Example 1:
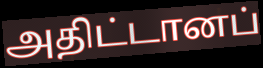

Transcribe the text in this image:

அதிட்டானப்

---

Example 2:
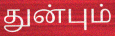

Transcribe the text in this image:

துன்பும்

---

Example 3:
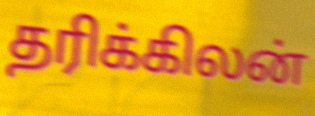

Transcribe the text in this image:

தரிக்கிலன்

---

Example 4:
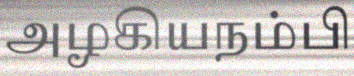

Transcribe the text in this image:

அழகியநம்பி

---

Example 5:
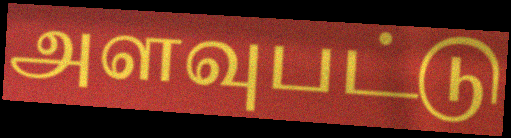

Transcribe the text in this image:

அளவுபட்டு